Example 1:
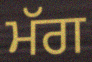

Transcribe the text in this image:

ਮੱਗ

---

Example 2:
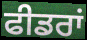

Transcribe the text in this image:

ਫੀਡਰਾਂ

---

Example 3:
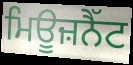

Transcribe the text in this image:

ਮਿਊਜ਼ਨੈੱਟ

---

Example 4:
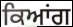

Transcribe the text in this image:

ਕਿਆਂਗ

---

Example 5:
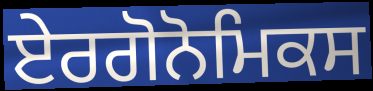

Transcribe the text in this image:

ਏਰਗੋਨੋਮਿਕਸ